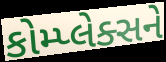
કોમ્પ્લેક્સને